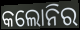
କଲୋନିର